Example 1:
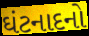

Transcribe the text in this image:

ઘંટનાદનો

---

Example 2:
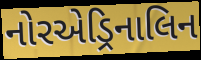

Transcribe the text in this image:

નોરએડ્રિનાલિન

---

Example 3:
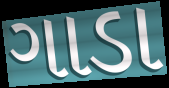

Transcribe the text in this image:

ગાડા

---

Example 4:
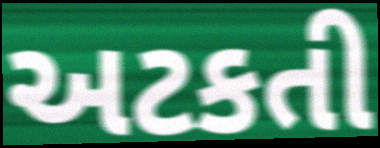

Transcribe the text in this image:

અટકતી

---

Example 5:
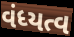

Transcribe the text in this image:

વંધ્યત્વ